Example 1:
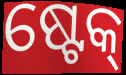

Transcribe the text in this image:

ଷ୍ଟେକ୍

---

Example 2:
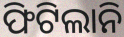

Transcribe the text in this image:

ଫିଟିଲାନି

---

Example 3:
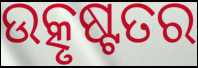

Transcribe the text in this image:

ଉତ୍କୃଷ୍ଟତର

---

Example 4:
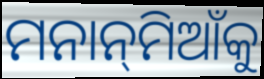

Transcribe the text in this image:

ମନାନ୍‌ମିଆଁକୁ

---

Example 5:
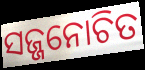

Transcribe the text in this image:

ସଜ୍ଜନୋଚିତ